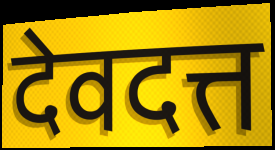
देवदत्त